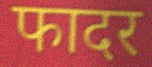
फादर